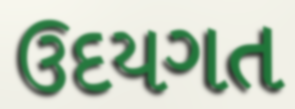
ઉદયગત